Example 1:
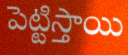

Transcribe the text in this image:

పెట్టిస్తాయి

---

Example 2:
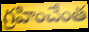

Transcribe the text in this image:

గ్రహించేంత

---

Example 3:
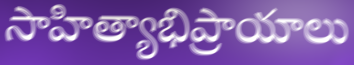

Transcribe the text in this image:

సాహిత్యాభిప్రాయాలు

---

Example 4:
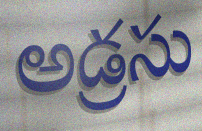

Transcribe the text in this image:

అడ్రసు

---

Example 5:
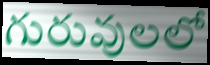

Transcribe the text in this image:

గురువులలో